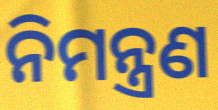
ନିମନ୍ତ୍ରଣ